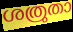
ശത്രുതാ